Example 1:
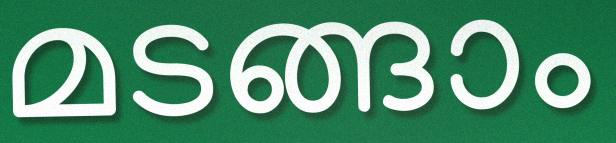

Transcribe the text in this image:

മടങ്ങാം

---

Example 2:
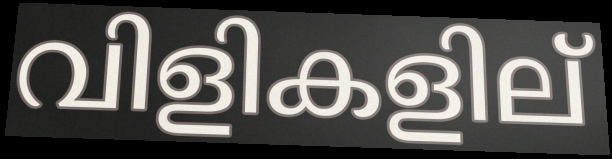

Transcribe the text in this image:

വിളികളില്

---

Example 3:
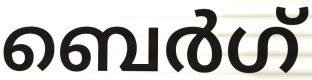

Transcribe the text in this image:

ബെർഗ്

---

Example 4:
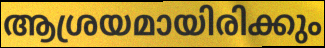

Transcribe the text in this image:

ആശ്രയമായിരിക്കും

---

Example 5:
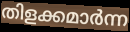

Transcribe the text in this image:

തിളക്കമാർന്ന